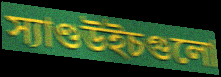
স্যাণ্ডউইচগুলো